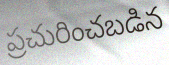
ప్రచురించబడిన